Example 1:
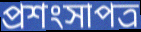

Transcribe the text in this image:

প্ৰশংসাপত্ৰ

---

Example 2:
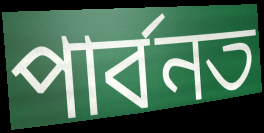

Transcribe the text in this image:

পাৰ্বনত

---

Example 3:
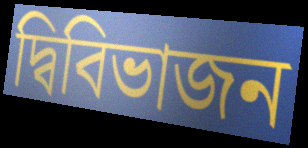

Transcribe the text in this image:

দ্বিবিভাজন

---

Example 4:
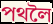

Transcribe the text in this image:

পথলৈ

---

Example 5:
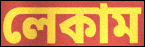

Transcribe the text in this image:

লেকাম